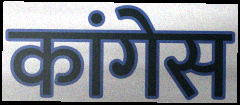
कांगेस